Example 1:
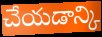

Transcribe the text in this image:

చేయడాన్కి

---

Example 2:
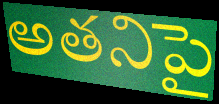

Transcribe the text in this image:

అతనిపై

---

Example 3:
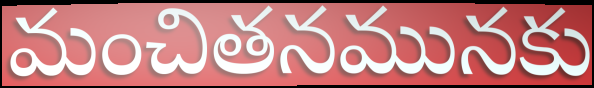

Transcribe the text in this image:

మంచితనమునకు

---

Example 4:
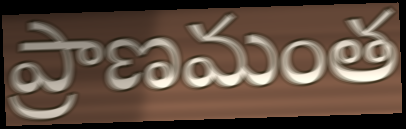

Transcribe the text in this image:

ప్రాణమంత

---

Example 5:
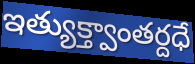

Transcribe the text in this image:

ఇత్యుక్త్వాంతర్దధే